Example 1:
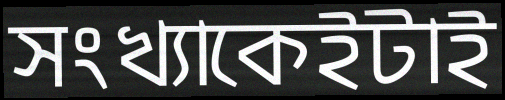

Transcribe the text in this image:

সংখ্যাকেইটাই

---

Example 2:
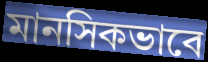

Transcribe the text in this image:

মানসিকভাবে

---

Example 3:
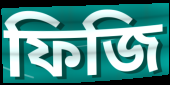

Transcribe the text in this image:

ফিজি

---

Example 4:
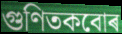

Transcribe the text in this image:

গুণিতকবোৰ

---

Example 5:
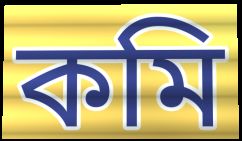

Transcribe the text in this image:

কমি